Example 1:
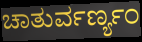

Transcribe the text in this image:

ಚಾತುರ್ವರ್ಣ್ಯಂ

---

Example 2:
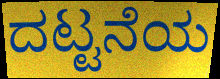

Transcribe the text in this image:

ದಟ್ಟನೆಯ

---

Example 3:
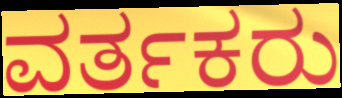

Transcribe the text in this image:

ವರ್ತಕರು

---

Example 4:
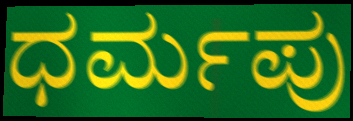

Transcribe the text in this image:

ಧರ್ಮಪು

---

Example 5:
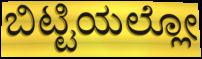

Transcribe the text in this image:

ಬಿಟ್ಟಿಯಲ್ಲೋ